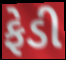
ફેડી